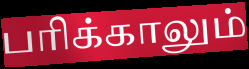
பரிக்காலும்